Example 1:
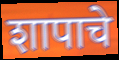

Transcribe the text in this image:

शापाचे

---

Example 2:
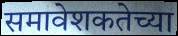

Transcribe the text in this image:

समावेशकतेच्या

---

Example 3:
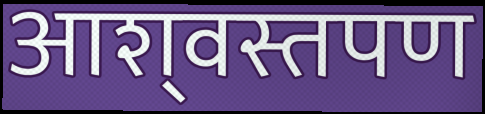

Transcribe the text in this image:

आश्वस्तपण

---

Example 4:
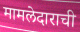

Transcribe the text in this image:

मामलेदाराची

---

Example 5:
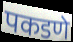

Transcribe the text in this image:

पकडणे